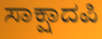
ಸಾಕ್ಷಾದಪಿ